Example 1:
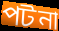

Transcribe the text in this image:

পটনা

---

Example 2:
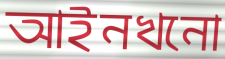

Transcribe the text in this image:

আইনখনো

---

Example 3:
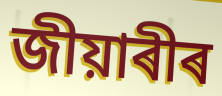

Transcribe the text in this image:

জীয়াৰীৰ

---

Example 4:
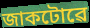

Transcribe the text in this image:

জাকটোৱে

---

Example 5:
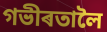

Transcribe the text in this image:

গভীৰতালৈ